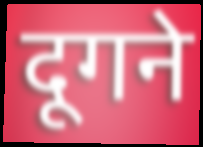
दूगने